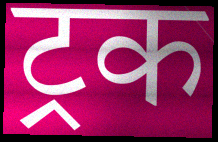
ट्रक